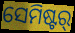
ସେମିଷ୍ଟର୍